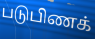
படுபிணக்